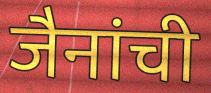
जैनांची